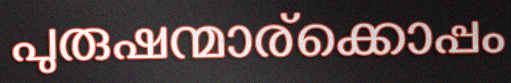
പുരുഷന്മാര്ക്കൊപ്പം